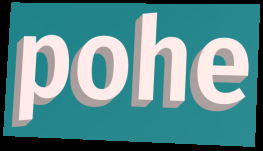
pohe